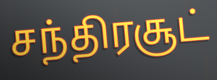
சந்திரசூட்